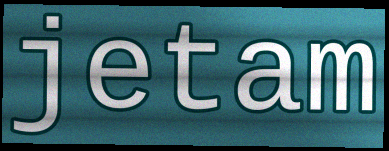
jetam